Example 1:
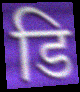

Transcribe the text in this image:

डि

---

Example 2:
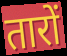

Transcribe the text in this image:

तारों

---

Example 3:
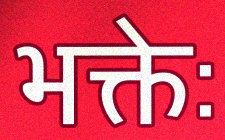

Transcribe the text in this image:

भक्तेः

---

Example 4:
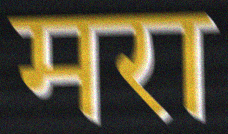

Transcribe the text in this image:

मरा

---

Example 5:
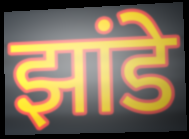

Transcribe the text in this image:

झांडे